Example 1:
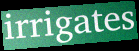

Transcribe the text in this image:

irrigates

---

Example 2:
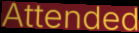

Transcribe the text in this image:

Attended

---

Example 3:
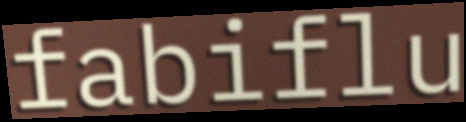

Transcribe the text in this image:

fabiflu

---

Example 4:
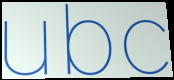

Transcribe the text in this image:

ubc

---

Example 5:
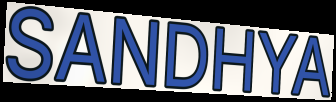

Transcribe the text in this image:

SANDHYA